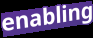
enabling